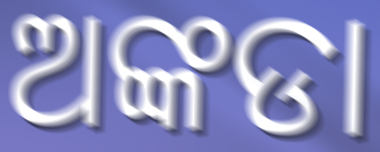
ଅଙ୍କଡା